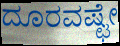
ದೂರವಷ್ಟೇ